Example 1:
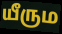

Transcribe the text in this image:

யீரும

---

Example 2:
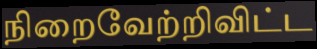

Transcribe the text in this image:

நிறைவேற்றிவிட்ட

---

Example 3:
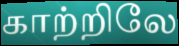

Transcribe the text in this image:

காற்றிலே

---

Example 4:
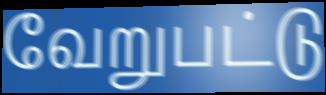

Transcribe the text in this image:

வேறுபட்டு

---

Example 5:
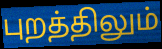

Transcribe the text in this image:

புறத்திலும்